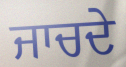
ਜਾਚਦੇ